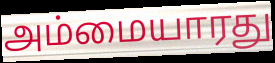
அம்மையாரது